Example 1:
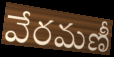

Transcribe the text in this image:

వేరమణీ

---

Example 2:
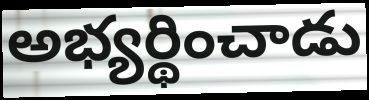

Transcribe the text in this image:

అభ్యర్థించాడు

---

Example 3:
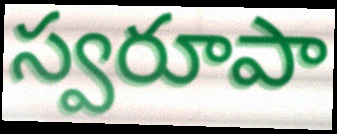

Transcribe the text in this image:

స్వరూపా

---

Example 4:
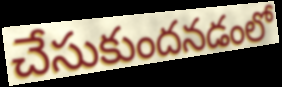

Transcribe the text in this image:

చేసుకుందనడంలో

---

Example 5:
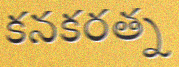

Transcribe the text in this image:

కనకరత్న